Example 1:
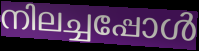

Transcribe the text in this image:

നിലച്ചപ്പോൾ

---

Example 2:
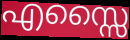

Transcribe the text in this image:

എസ്സൈ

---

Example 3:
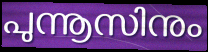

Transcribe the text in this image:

പുന്നൂസിനും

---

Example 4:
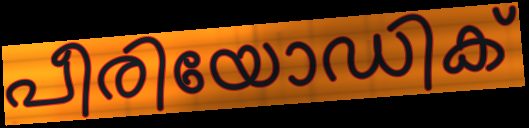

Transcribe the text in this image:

പീരിയോഡിക്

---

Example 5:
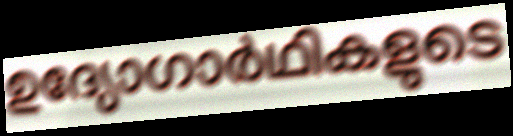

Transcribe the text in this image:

ഉദ്യോഗാർഥികളുടെ